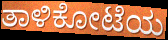
ತಾಳಿಕೋಟೆಯ